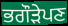
ਭਗੌੜੇਪਣ